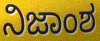
ನಿಜಾಂಶ